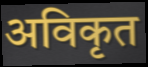
अविकृत